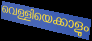
വെള്ളിയെക്കാളും